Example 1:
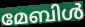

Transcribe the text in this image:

മേബിൾ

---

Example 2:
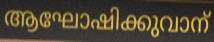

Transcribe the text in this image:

ആഘോഷിക്കുവാന്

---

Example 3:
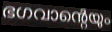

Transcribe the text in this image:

ഭഗവാന്റെയും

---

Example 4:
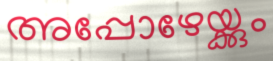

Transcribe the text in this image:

അപ്പോഴേയ്ക്കും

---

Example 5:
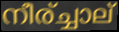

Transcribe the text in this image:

നീര്ച്ചാല്